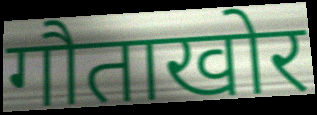
गौताखोर